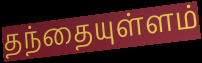
தந்தையுள்ளம்